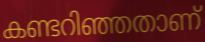
കണ്ടറിഞ്ഞതാണ്